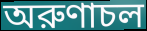
অরুণাচল